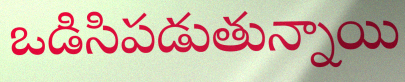
ఒడిసిపడుతున్నాయి